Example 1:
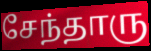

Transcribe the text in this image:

சேந்தாரு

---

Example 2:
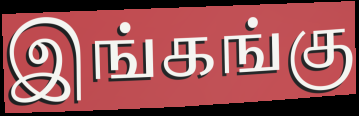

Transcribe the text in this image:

இங்கங்கு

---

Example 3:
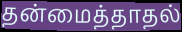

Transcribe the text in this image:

தன்மைத்தாதல்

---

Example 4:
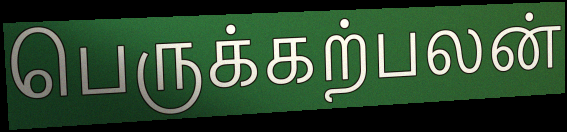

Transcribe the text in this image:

பெருக்கற்பலன்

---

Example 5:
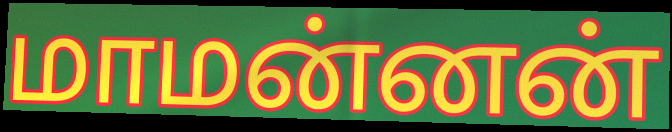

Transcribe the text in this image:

மாமன்னன்